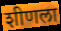
शीणला